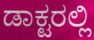
ಡಾಕ್ಟರಲ್ಲಿ